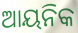
ଆୟନିକ